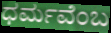
ಧರ್ಮವೆಂಬ